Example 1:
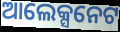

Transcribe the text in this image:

ଆଲେକ୍ସନେଟ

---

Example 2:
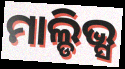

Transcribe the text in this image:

ମାଲ୍ଡିଭ୍ସ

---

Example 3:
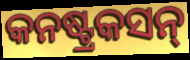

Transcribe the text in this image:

କନଷ୍ଟ୍ରକସନ୍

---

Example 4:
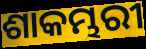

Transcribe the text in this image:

ଶାକମ୍ଭରୀ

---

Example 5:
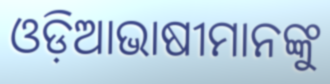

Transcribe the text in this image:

ଓଡ଼ିଆଭାଷୀମାନଙ୍କୁ